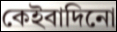
কেইবাদিনো